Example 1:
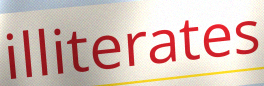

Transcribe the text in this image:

illiterates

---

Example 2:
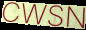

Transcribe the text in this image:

CWSN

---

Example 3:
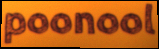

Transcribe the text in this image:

poonool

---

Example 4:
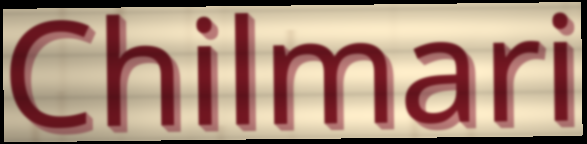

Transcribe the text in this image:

Chilmari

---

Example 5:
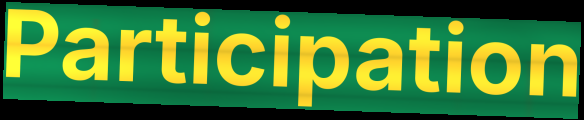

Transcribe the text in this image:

Participation